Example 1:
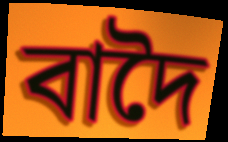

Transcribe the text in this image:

বাদৈ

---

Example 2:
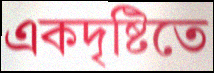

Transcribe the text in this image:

একদৃষ্টিতে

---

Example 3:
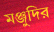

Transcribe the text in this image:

মঞ্জুদির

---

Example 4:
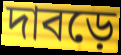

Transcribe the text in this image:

দাবড়ে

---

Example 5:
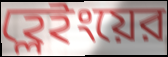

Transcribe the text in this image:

হ্লেইংয়ের